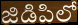
జిడిపిలో